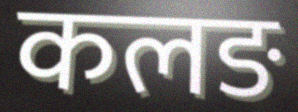
कलङ